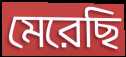
মেরেছি